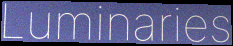
Luminaries